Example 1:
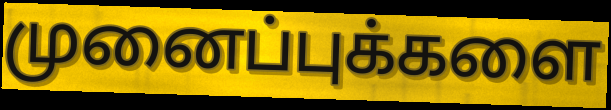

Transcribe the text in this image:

முனைப்புக்களை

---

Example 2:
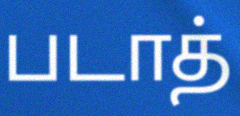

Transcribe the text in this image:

படாத்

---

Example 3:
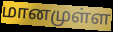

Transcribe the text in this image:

மானமுள்ள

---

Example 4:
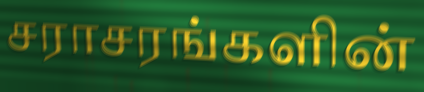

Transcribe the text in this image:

சராசரங்களின்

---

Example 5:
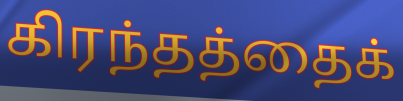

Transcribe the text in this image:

கிரந்தத்தைக்